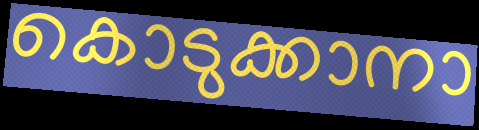
കൊടുക്കാനാ